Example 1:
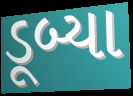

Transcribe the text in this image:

ડૂબ્યા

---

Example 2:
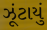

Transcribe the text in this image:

ઝૂંટાયું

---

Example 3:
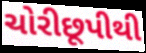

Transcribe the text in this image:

ચોરીછૂપીથી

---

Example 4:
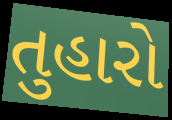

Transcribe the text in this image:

તુહારો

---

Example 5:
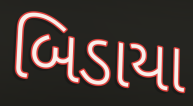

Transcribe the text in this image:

બિડાયા